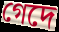
গেদে